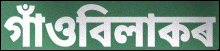
গাঁওবিলাকৰ